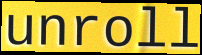
unroll